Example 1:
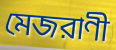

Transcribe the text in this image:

মেজরাণী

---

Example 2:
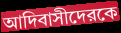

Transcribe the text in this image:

আদিবাসীদেরকে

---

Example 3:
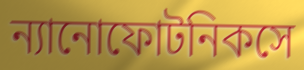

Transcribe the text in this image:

ন্যানোফোটনিকসে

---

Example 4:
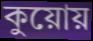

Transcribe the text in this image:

কুয়োয়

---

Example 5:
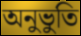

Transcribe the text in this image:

অনুভুতি